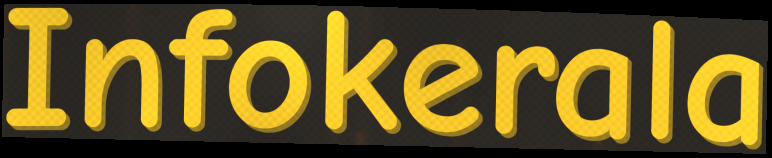
Infokerala